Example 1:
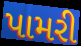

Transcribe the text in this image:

પામરી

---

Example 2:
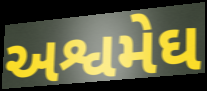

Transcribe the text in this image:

અશ્વમેઘ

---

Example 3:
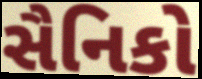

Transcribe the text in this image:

સૈનિકો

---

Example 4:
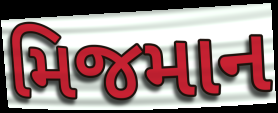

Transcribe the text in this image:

મિજમાન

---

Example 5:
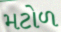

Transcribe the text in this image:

મટોળ